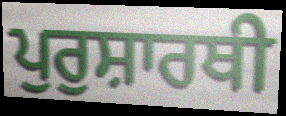
ਪੁਰੁਸ਼ਾਰਥੀ